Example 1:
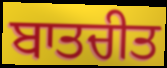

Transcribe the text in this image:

ਬਾਤਚੀਤ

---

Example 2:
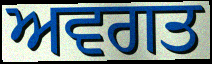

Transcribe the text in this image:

ਅਵਗਤ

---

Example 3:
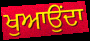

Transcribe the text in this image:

ਖੁਆਉਂਦਾ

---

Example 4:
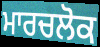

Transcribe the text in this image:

ਮਾਰਚਲੋਕ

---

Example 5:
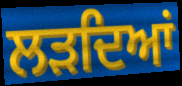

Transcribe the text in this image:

ਲੜਦਿਆਂ